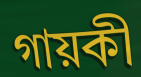
গায়কী